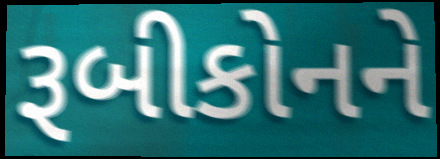
રૂબીકોનને